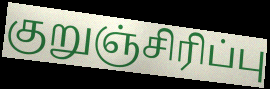
குறுஞ்சிரிப்பு